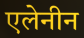
एलेनीन